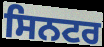
ਸਿਨਟਰ